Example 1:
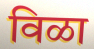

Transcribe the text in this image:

विळा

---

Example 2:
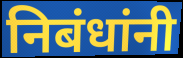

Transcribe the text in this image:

निबंधांनी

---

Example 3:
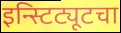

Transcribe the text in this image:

इन्स्टिट्यूटचा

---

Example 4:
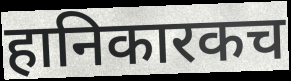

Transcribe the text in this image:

हानिकारकच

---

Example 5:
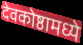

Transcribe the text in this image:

देवकोष्ठामध्ये